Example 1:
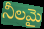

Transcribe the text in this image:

నీలమై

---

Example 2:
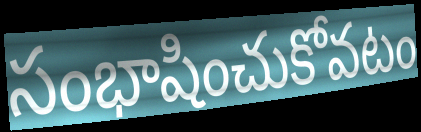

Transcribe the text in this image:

సంభాషించుకోవటం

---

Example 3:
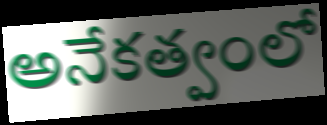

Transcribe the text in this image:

అనేకత్వంలో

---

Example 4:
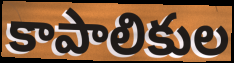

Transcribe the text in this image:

కాపాలికుల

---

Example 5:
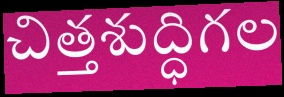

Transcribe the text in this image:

చిత్తశుద్ధిగల